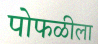
पोफळीला